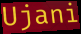
Ujani